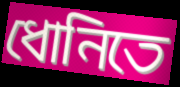
ধোনিতে